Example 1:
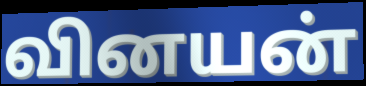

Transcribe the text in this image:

வினயன்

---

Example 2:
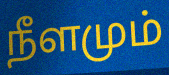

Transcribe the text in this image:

நீளமும்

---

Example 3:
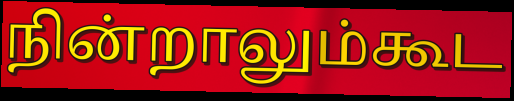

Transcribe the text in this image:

நின்றாலும்கூட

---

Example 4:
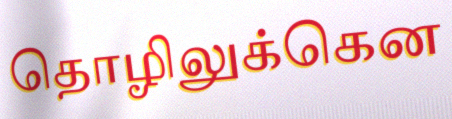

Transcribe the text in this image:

தொழிலுக்கென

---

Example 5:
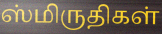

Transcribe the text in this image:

ஸ்மிருதிகள்